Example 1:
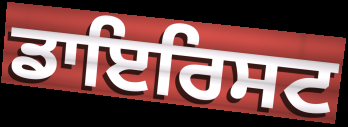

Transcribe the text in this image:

ਡਾਇਰਿਸਟ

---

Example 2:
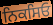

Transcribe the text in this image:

ਨਿਕਸਿਓ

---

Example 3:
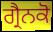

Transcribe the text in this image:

ਗ੍ਰੈਨਕੋ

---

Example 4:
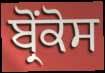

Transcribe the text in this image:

ਬ੍ਰੋਂਕੋਸ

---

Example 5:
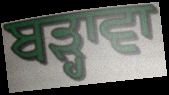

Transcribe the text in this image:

ਬੜ੍ਹਾਵਾ